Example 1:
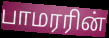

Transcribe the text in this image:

பாமரரின்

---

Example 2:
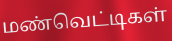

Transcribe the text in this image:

மண்வெட்டிகள்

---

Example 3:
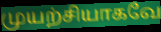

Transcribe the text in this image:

முயற்சியாகவே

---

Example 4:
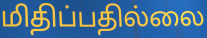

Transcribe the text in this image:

மிதிப்பதில்லை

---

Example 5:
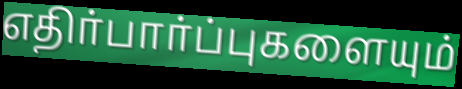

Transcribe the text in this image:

எதிர்பார்ப்புகளையும்